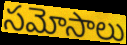
సమోసాలు